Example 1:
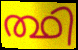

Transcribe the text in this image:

ത്ഥി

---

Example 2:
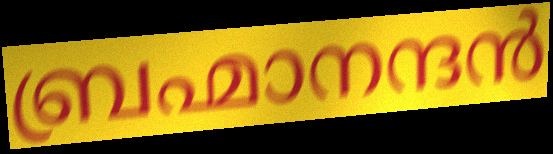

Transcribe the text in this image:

ബ്രഹ്മാനന്ദൻ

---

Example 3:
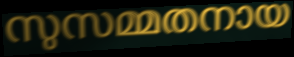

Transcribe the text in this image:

സുസമ്മതനായ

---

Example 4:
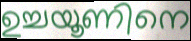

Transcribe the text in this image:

ഉച്ചയൂണിനെ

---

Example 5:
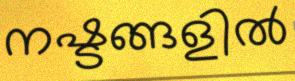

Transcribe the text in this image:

നഷ്ടങ്ങളിൽ